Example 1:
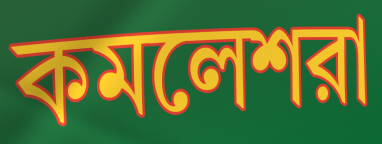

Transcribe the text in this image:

কমলেশরা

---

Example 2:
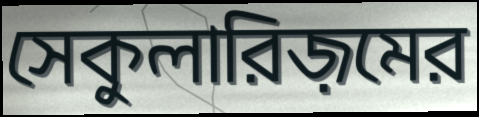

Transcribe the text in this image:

সেকুলারিজ়মের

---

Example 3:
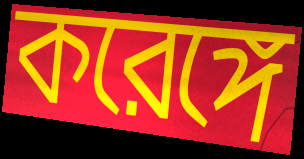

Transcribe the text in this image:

করেঙ্গে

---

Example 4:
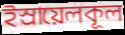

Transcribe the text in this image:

ইস্রায়েলকূল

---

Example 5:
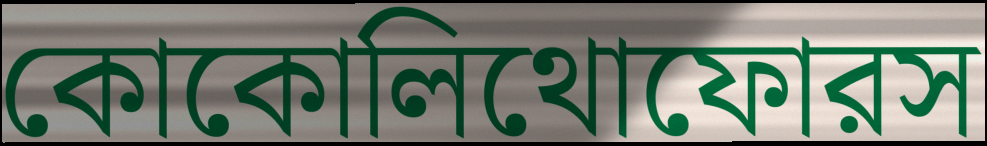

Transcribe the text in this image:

কোকোলিথোফোরস